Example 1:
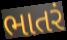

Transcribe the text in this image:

ભાતરં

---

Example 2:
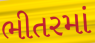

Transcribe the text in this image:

ભીતરમાં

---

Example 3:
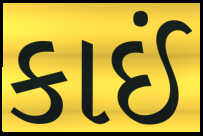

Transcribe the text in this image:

કાઈં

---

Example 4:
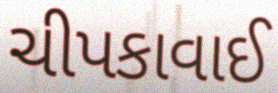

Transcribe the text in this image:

ચીપકાવાઈ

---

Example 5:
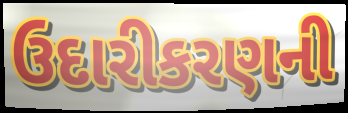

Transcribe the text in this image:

ઉદારીકરણની